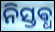
ନିସ୍ତଵ୍ଧ